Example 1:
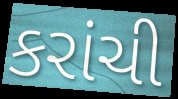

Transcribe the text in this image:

કરાંચી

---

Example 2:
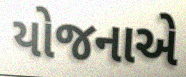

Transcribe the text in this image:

યોજનાએ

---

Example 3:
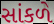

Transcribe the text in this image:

સાંકળે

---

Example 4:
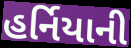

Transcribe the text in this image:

હર્નિયાની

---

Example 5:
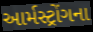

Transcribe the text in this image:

આર્મસ્ટ્રોંગના